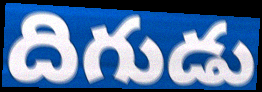
దిగుడు